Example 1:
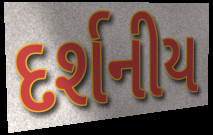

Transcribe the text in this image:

દર્શનીય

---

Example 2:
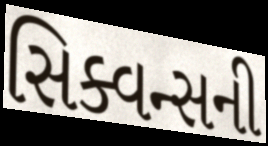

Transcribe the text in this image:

સિક્વન્સની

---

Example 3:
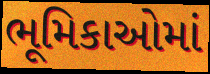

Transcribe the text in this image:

ભૂમિકાઓમાં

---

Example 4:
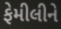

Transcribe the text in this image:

ફેમીલીને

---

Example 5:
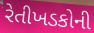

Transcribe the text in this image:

રેતીખડકોની